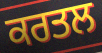
ਕਰਤਲ